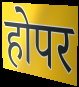
होपर